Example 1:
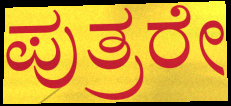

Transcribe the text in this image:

ಪುತ್ರರೇ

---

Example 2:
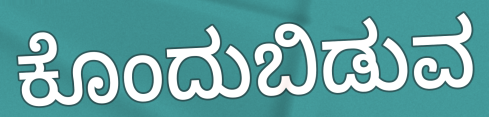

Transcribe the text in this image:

ಕೊಂದುಬಿಡುವ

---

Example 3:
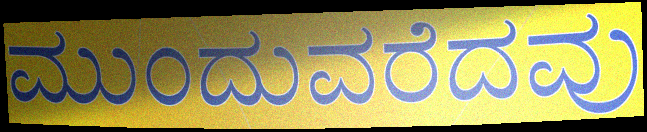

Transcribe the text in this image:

ಮುಂದುವರೆದವು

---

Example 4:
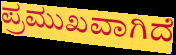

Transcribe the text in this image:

ಪ್ರಮುಖವಾಗಿದೆ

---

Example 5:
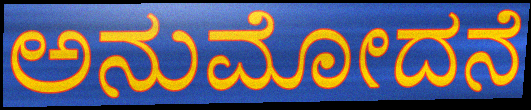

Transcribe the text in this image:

ಅನುಮೋದನೆ